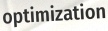
optimization